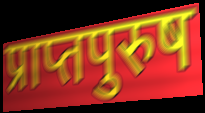
प्राप्तपुरुष